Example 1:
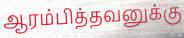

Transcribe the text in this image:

ஆரம்பித்தவனுக்கு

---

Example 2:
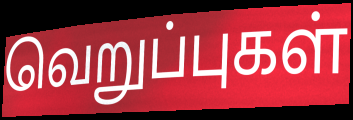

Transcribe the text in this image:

வெறுப்புகள்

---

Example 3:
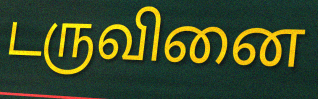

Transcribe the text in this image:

டருவினை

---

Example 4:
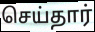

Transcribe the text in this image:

செய்தார்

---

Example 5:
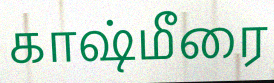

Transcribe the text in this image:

காஷ்மீரை